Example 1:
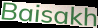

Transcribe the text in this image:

Baisakh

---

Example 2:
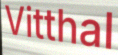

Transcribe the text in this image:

Vitthal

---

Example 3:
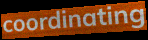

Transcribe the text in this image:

coordinating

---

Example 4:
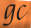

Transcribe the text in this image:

gc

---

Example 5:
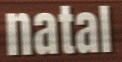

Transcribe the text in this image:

natal